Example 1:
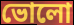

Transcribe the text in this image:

ভোলো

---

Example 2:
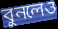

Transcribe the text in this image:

বুনলেও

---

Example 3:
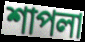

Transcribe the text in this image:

শাপলা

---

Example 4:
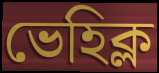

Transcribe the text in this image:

ভেহিক্ল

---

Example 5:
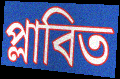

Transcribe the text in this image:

প্লাবিত